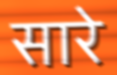
सारे